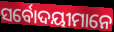
ସର୍ବୋଦୟୀମାନେ